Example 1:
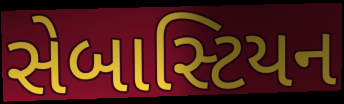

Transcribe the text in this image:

સેબાસ્ટિયન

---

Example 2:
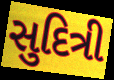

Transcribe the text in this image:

સુદિત્રી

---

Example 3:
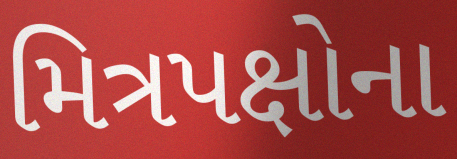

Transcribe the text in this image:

મિત્રપક્ષોના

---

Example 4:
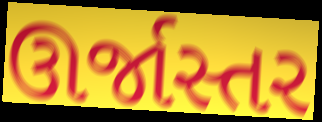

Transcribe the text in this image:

ઊર્જાસ્તર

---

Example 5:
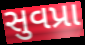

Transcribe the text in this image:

સુવપ્રા